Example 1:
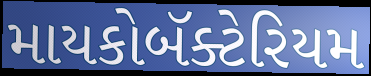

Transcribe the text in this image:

માયકોબૅક્ટેરિયમ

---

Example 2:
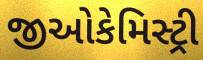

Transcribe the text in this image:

જીઓકેમિસ્ટ્રી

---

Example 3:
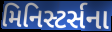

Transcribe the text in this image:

મિનિસ્ટર્સના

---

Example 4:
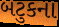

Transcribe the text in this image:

બટુકના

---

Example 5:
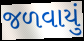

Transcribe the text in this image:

જળવાયું